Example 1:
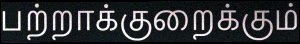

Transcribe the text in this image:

பற்றாக்குறைக்கும்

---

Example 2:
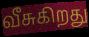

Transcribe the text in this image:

வீசுகிறது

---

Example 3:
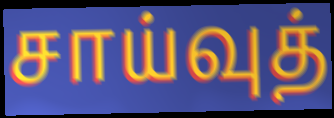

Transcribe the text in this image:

சாய்வுத்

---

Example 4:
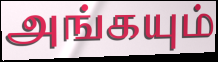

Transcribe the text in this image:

அங்கயும்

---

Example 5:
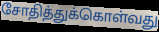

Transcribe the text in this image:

சோதித்துக்கொள்வது